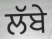
ਲੱਬੇ